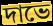
দাভে